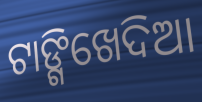
ଟାଙ୍ଗିଖେଦିଆ